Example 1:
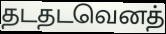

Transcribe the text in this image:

தடதடவெனத்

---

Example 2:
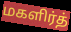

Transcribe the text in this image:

மகளிர்த்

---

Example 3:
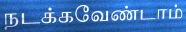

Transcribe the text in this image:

நடக்கவேண்டாம்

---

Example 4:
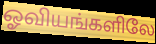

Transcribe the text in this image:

ஓவியங்களிலே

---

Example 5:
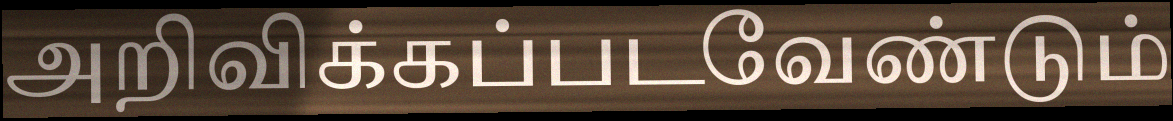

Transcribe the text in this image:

அறிவிக்கப்படவேண்டும்